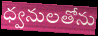
ధ్వనులతోను